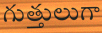
గుత్తులుగా